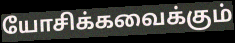
யோசிக்கவைக்கும்